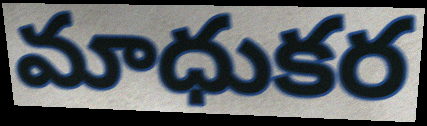
మాధుకర